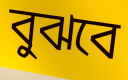
বুঝবে